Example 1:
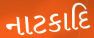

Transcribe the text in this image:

નાટકાદિ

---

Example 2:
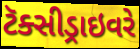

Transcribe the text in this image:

ટૅક્સીડ્રાઇવરે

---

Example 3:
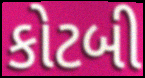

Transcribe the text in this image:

કોટબી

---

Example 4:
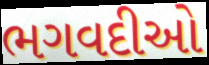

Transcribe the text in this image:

ભગવદીઓ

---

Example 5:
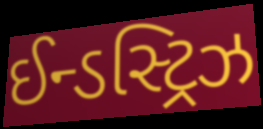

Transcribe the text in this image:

ઈન્ડસ્ટ્રિઝ